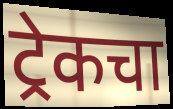
ट्रेकचा